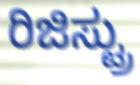
ರಿಜಿಸ್ಟ್ರು